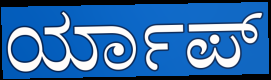
ರ್ಯಾಪ್